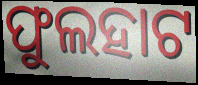
ଫୁଲହାଟ